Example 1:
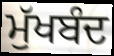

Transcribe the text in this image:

ਮੁੱਖਬੰਦ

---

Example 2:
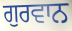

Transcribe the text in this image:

ਗੁਰਵਾਨ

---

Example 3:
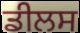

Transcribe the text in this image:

ਡੀਲਸ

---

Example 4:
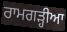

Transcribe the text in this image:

ਰਾਮਗਡ਼੍ਹੀਆ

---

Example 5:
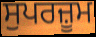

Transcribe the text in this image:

ਸੁਪਰਜ਼ੂਮ